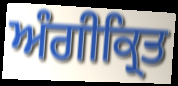
ਅੰਗੀਕ੍ਰਿਤ